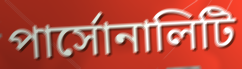
পার্সোনালিটি